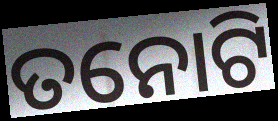
ତନୋଟି